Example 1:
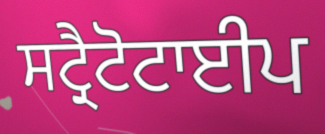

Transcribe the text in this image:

ਸਟ੍ਰੈਟੋਟਾਈਪ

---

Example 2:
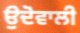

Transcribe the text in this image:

ਉਦੋਵਾਲੀ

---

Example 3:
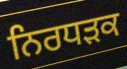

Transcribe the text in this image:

ਨਿਰਧੜਕ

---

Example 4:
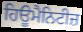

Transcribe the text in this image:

ਹਿਊਮੈਨਿਟੀਜ਼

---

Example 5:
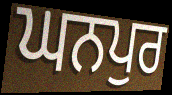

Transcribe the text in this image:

ਘਨਪੁਰ